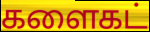
களைகட்